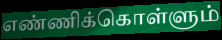
எண்ணிக்கொள்ளும்